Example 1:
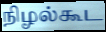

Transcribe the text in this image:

நிழல்கூட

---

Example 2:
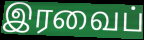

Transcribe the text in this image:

இரவைப்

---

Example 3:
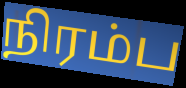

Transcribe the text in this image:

நிரம்ப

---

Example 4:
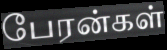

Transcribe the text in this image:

பேரன்கள்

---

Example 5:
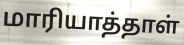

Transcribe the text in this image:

மாரியாத்தாள்